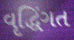
વૃદ્ધિંગત